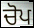
ਚੋਪ